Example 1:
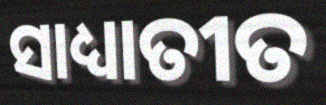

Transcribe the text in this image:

ସାଧ୍ୟାତୀତ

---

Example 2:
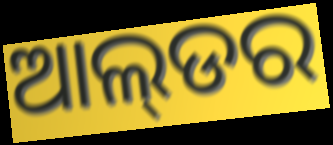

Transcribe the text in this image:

ଆଲ୍‌ଡର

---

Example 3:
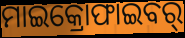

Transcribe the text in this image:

ମାଇକ୍ରୋଫାଇବର୍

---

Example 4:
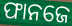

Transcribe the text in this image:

ଫାନଜେ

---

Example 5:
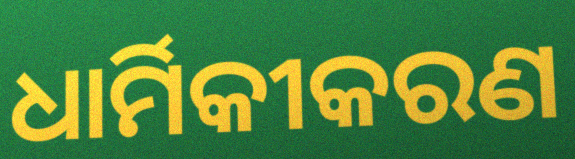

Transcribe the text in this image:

ଧାର୍ମିକୀକରଣ